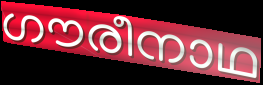
ഗൗരീനാഥ